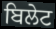
ਬਿਲੇਟ